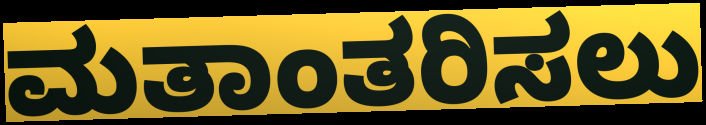
ಮತಾಂತರಿಸಲು